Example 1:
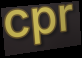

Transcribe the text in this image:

cpr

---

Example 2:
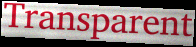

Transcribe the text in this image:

Transparent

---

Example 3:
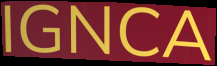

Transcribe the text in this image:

IGNCA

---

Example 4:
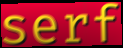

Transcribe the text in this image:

serf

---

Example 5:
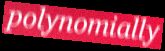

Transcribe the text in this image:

polynomially